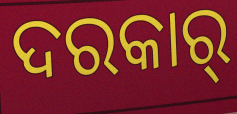
ଦରକାର୍